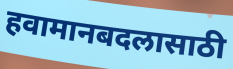
हवामानबदलासाठी